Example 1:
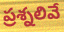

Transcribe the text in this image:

ప్రశ్నలివే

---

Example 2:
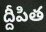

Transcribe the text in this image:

ద్దీపిత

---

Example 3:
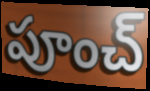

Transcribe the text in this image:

పూంచ్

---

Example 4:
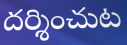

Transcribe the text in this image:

దర్శించుట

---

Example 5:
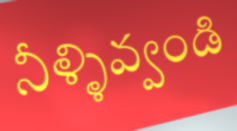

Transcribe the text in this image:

నీళ్ళివ్వండి